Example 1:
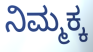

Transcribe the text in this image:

ನಿಮ್ಮಕ್ಕ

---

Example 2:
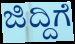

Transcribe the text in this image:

ಜಿದ್ದಿಗೆ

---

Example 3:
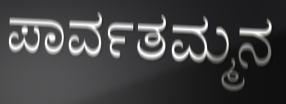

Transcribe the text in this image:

ಪಾರ್ವತಮ್ಮನ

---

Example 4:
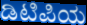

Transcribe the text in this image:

ಡಿಟಿಪಿಯ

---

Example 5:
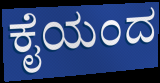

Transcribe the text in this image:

ಕೈಯಂದ